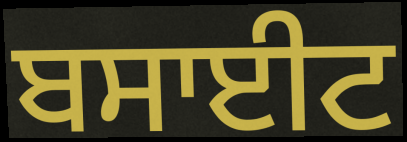
ਬਸਾਈਟ